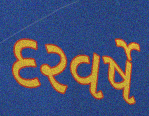
દરવર્ષે